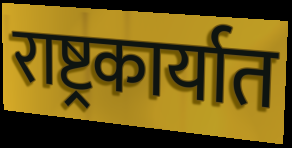
राष्ट्रकार्यात